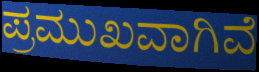
ಪ್ರಮುಖವಾಗಿವೆ